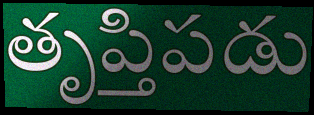
తృప్తిపడు